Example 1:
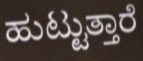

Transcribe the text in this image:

ಹುಟ್ಟುತ್ತಾರೆ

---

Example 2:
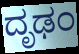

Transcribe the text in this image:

ದೃಢಂ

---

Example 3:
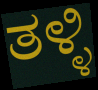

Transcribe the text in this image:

ತಳ್ಳಿ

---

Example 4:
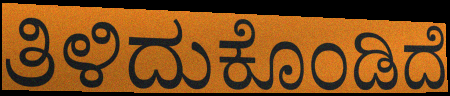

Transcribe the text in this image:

ತಿಳಿದುಕೊಂಡಿದೆ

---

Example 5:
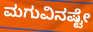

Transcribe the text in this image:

ಮಗುವಿನಷ್ಟೇ